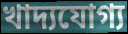
খাদ্যযোগ্য